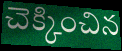
చెక్కించిన